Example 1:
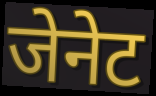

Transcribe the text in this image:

जेनेट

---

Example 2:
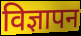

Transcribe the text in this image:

विज्ञापन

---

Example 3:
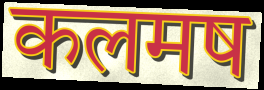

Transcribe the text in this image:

कलमष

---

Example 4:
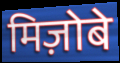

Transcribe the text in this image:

मिज़ोबे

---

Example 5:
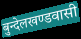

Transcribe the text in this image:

बुन्देलखण्डवासी